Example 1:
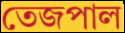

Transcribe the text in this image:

তেজপাল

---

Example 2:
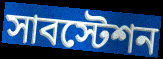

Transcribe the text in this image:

সাবস্টেশন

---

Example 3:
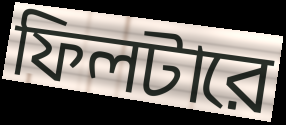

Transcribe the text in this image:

ফিলটারে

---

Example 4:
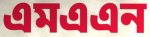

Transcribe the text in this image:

এমএএন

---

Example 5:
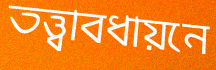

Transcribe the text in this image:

তত্ত্বাবধায়নে